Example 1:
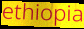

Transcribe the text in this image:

ethiopia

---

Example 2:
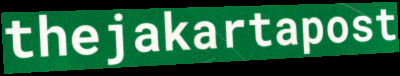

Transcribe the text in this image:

thejakartapost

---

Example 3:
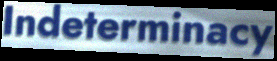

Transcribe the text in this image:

Indeterminacy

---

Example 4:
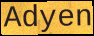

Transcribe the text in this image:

Adyen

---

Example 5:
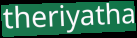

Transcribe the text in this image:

theriyatha